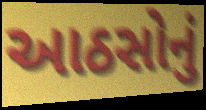
આઠસોનું